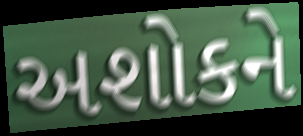
અશોકને